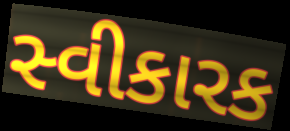
સ્વીકારક